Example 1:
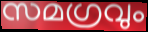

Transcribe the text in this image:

സമഗ്രവും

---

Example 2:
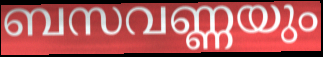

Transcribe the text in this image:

ബസവണ്ണയും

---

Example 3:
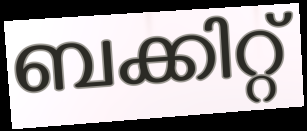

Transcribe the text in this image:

ബക്കിറ്റ്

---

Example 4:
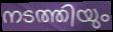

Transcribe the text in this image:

നടത്തിയും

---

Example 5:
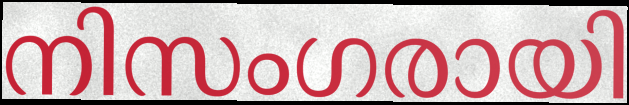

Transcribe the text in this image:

നിസംഗരായി